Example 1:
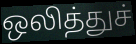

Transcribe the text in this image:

ஒலித்துச்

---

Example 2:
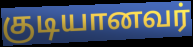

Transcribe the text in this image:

குடியானவர்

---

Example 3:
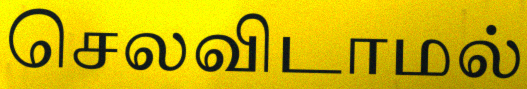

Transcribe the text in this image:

செலவிடாமல்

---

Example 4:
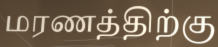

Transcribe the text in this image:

மரணத்திற்கு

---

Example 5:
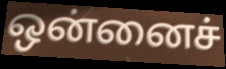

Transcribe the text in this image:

ஒன்னைச்